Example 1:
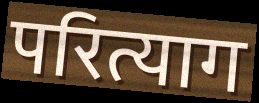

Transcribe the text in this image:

परित्याग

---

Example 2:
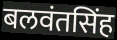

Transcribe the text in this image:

बलवंतसिंह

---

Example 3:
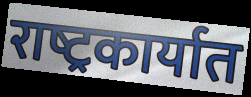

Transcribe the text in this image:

राष्ट्रकार्यात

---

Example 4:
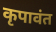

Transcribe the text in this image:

कृपावंत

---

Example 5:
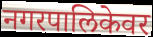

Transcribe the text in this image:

नगरपालिकेवर